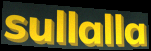
sullalla